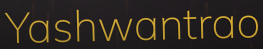
Yashwantrao